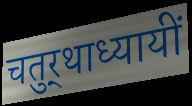
चतुर्थाध्यायीं